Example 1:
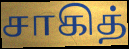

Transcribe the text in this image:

சாகித்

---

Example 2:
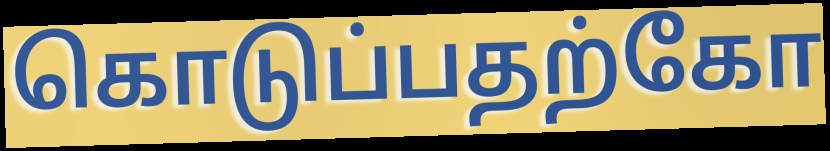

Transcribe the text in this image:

கொடுப்பதற்கோ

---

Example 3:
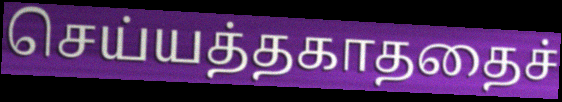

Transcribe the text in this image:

செய்யத்தகாததைச்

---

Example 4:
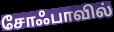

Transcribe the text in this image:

சோஃபாவில்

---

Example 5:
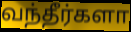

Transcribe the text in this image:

வந்தீர்களா